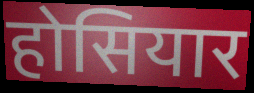
होसियार